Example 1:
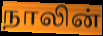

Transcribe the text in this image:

நாலின்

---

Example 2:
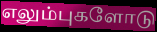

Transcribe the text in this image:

எலும்புகளோடு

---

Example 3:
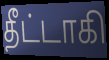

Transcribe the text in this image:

தீட்டாகி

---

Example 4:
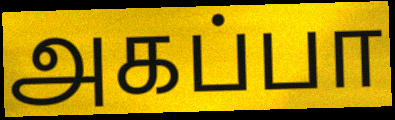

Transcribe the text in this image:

அகப்பா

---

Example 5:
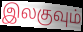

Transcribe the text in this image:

இலகுவும்